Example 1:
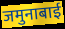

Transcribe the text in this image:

जमुनाबाई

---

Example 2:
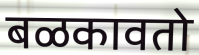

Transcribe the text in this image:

बळकावतो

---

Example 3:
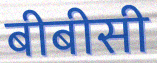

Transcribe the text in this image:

बीबीसी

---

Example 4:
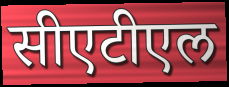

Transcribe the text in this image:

सीएटीएल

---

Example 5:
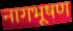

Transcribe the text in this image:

नागभूषण